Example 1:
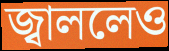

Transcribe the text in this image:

জ্বাললেও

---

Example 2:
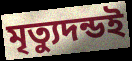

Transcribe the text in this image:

মৃত্যুদন্ডই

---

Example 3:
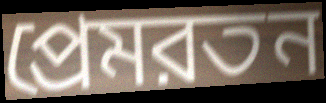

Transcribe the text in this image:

প্রেমরতন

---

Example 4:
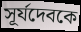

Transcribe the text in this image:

সূর্যদেবকে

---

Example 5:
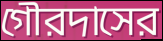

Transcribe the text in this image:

গৌরদাসের